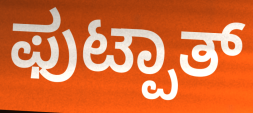
ಫುಟ್ಪಾತ್